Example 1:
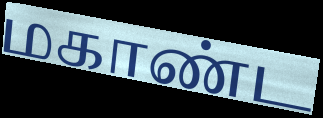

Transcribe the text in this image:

மகாண்ட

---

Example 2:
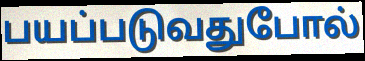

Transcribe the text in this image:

பயப்படுவதுபோல்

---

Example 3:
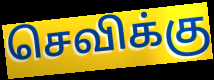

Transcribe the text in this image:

செவிக்கு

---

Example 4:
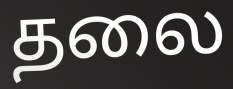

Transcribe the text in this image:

தலை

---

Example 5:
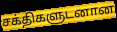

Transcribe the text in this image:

சக்திகளுடனான